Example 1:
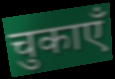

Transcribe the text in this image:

चुकाएँ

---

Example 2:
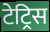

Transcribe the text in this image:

टेट्रिस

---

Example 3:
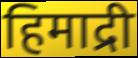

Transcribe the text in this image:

हिमाद्री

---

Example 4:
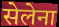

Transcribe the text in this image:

सेलेना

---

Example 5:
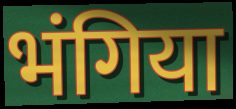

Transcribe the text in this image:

भंगिया